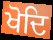
ਖੋਦਿ